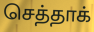
செத்தாக்